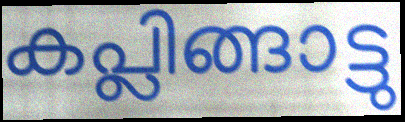
കപ്ലിങ്ങാട്ടു